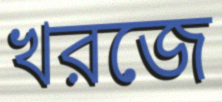
খরজে